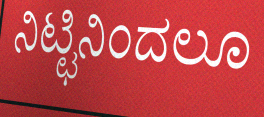
ನಿಟ್ಟಿನಿಂದಲೂ